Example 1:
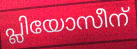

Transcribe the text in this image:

പ്ലിയോസീന്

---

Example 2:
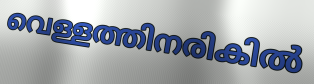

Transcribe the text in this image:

വെള്ളത്തിനരികിൽ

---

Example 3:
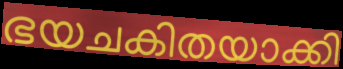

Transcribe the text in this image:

ഭയചകിതയാക്കി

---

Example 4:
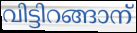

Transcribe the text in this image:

വിട്ടിറങ്ങാന്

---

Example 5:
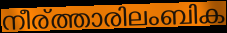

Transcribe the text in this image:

നീര്ത്താരിലംബിക